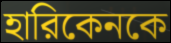
হারিকেনকে